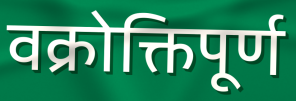
वक्रोक्तिपूर्ण